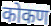
कोकण